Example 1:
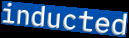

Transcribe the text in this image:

inducted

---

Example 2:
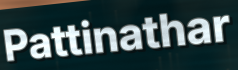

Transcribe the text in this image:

Pattinathar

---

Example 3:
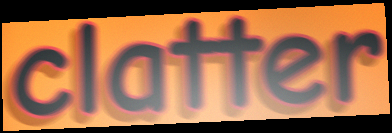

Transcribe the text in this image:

clatter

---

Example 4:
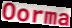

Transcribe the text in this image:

Oorma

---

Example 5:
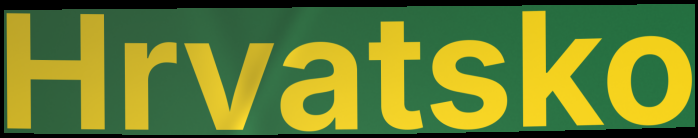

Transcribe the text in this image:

Hrvatsko